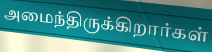
அமைந்திருக்கிறார்கள்